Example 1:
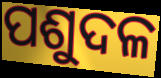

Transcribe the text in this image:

ପଶୁଦଳ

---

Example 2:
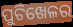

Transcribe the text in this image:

ପୁଚିଖେଳର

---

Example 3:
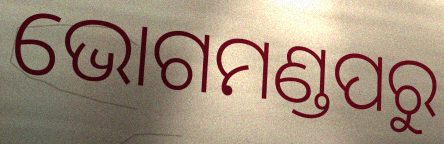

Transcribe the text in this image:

ଭୋଗମଣ୍ଡପରୁ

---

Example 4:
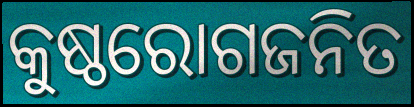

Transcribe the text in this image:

କୁଷ୍ଠରୋଗଜନିତ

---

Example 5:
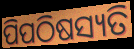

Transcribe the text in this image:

ପିପଠିଷସ୍ଯତି